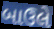
બાઉલે